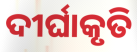
ଦୀର୍ଘାକୃତି